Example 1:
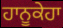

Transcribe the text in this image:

ਹਾਨੂਕੇਹਾ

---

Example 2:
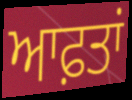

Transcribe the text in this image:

ਆਫ਼ਤਾਂ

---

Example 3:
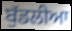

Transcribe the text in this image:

ਬੁੱਡਲੀਆ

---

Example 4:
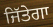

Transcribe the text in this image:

ਜਿੱਤੇਗਾ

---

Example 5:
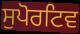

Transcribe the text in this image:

ਸੁਪੋਰਟਿਵ